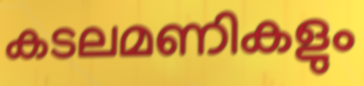
കടലമണികളും